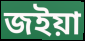
জইয়া